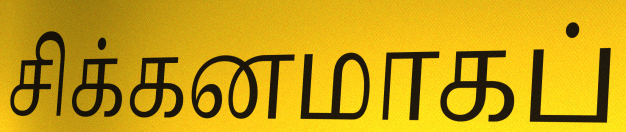
சிக்கனமாகப்